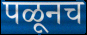
पळूनच